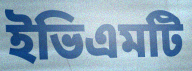
ইভিএমটি